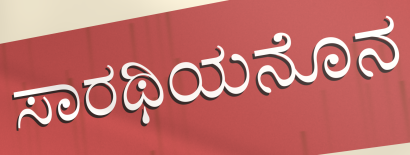
ಸಾರಥಿಯನೊನ